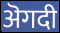
ऄगदी